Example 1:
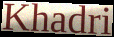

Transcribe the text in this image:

Khadri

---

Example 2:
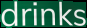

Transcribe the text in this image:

drinks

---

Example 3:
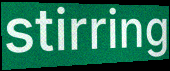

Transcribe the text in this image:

stirring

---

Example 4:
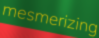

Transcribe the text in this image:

mesmerizing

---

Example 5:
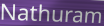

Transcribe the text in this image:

Nathuram